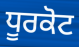
ਧੂਰਕੋਟ